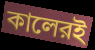
কালেরই